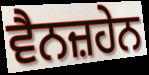
ਵੈਨਜ਼ਹੇਨ